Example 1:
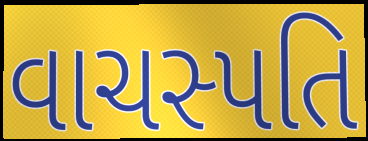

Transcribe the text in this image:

વાચસ્પતિ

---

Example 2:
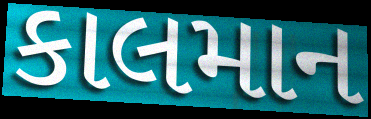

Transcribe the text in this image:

કાલમાન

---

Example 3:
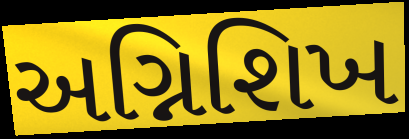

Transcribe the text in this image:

અગ્નિશિખ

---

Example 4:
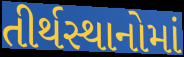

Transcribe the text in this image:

તીર્થસ્થાનોમાં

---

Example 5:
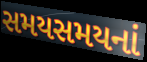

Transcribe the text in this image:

સમયસમયનાં